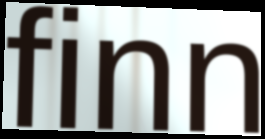
finn